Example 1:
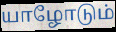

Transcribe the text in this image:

யாழோடும்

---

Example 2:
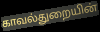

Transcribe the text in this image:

காவல்துறையின்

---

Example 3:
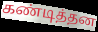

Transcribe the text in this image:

கண்டித்தன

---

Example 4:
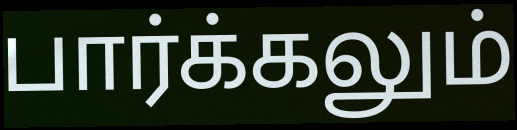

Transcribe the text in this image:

பார்க்கலும்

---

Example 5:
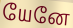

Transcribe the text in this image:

யேனே